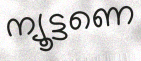
ന്യൂട്ടണെ